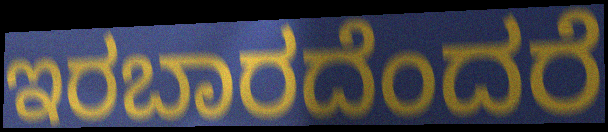
ಇರಬಾರದೆಂದರೆ